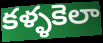
కళ్ళకెలా